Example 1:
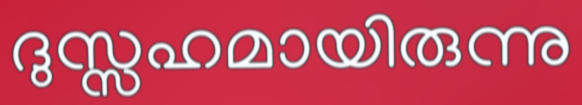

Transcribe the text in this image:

ദുസ്സഹമായിരുന്നു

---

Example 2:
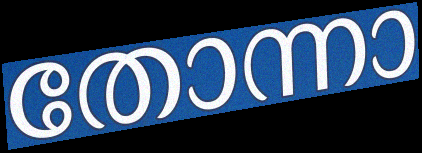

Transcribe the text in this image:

തോന്നാ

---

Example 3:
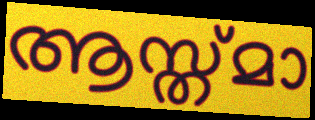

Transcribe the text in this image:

ആസ്ത്മാ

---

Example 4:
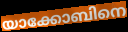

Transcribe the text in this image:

യാക്കോബിനെ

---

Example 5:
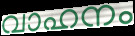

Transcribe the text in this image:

വാഹനം